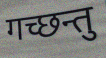
गच्छन्तु